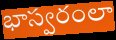
భాస్వరంలా